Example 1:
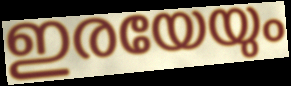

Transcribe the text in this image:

ഇരയേയും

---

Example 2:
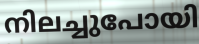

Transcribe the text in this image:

നിലച്ചുപോയി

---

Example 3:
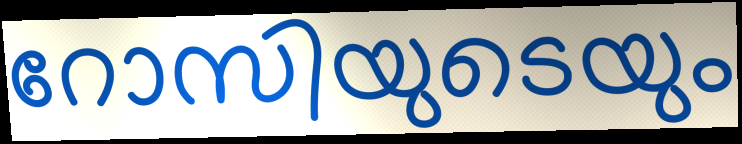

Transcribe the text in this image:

റോസിയുടെയും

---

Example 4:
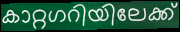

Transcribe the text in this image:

കാറ്റഗറിയിലേക്ക്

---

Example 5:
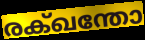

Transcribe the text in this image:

രക്ഖന്തോ